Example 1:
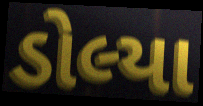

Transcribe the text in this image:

ડોલ્યા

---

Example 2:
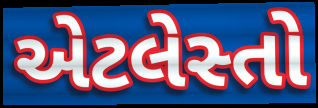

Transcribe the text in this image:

એટલેસ્તો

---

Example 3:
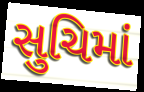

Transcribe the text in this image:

સુચિમાં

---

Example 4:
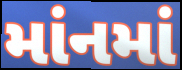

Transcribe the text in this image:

માંનમાં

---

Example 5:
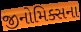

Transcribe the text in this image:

જીનોમિક્સના